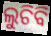
ଲୁଚିବି